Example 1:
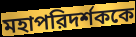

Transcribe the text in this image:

মহাপরিদর্শককে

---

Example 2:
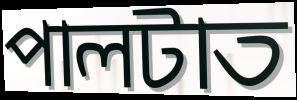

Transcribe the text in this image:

পালটাত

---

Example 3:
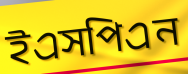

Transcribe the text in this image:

ইএসপিএন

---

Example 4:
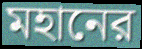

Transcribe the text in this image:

মহানের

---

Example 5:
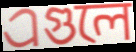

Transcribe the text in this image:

এগুলে